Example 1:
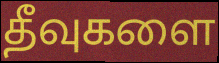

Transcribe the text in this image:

தீவுகளை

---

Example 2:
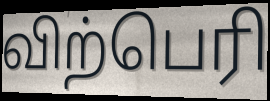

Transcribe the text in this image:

விற்பெரி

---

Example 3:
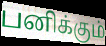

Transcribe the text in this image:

பனிக்கும்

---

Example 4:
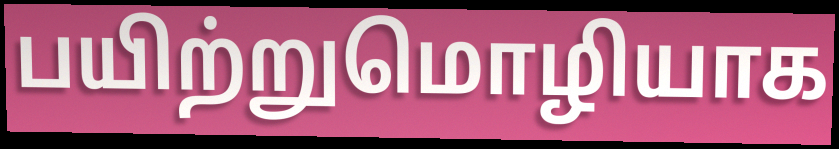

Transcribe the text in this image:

பயிற்றுமொழியாக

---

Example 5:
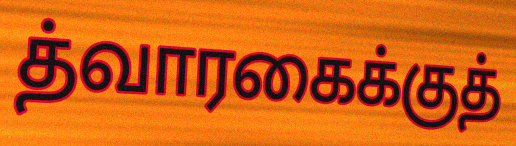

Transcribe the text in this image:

த்வாரகைக்குத்